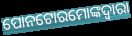
ପୋନଟୋରମୋଙ୍କଦ୍ୱାରା